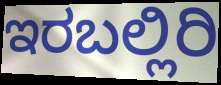
ಇರಬಲ್ಲಿರಿ